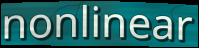
nonlinear